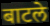
बाटले